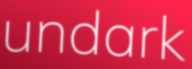
undark